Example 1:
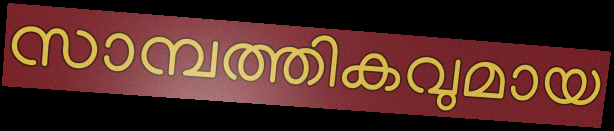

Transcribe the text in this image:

സാമ്പത്തികവുമായ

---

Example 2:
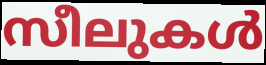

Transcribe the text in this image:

സീലുകൾ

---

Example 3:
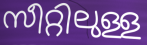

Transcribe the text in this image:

സീറ്റിലുള്ള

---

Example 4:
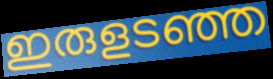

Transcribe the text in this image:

ഇരുളടഞ്ഞ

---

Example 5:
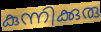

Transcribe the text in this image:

കുന്നിക്കുരു